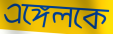
এঙ্গেলকে